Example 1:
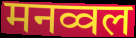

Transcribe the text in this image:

मनव्वल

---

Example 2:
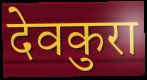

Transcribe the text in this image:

देवकुरा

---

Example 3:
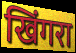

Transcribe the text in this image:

खिंगरा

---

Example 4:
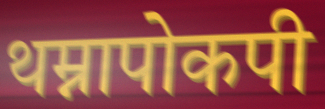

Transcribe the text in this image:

थम्नापोकपी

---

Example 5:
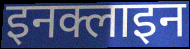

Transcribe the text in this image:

इनक्लाइन